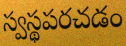
స్వస్థపరచడం